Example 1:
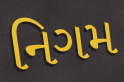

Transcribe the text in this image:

નિગમ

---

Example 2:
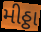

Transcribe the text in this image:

મીઠ્ઠા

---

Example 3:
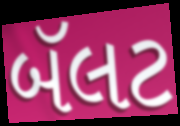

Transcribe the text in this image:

બૅલટ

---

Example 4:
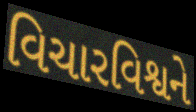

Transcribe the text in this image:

વિચારવિશ્વને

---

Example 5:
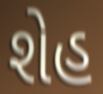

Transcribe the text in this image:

શેહ